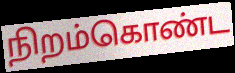
நிறம்கொண்ட